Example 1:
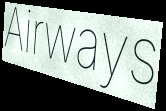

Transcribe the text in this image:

Airways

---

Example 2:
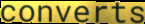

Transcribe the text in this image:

converts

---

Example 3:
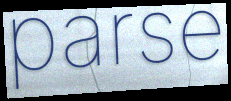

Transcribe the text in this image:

parse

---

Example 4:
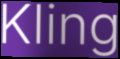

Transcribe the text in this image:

Kling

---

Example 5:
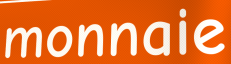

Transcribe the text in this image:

monnaie